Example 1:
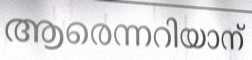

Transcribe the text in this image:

ആരെന്നറിയാന്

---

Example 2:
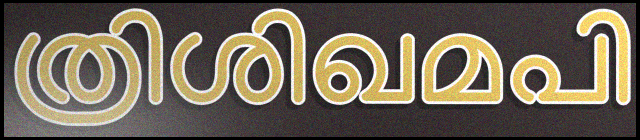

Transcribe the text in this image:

ത്രിശിഖമപി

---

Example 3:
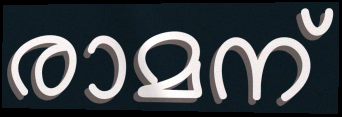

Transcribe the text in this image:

രാമന്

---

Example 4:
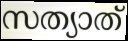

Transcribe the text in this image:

സത്യാത്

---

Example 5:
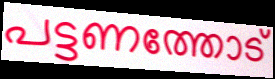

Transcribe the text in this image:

പട്ടണത്തോട്